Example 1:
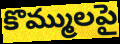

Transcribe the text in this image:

కొమ్ములపై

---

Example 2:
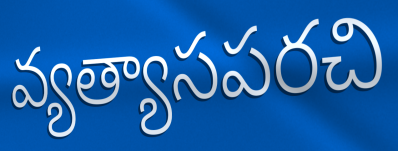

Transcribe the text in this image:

వ్యత్యాసపరచి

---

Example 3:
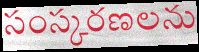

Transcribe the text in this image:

సంస్కరణలను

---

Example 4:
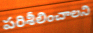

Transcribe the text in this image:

పరిశీలించాలని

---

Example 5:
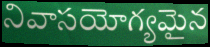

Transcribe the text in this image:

నివాసయోగ్యమైన